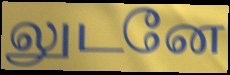
லுடனே